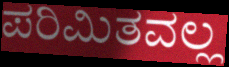
ಪರಿಮಿತವಲ್ಲ